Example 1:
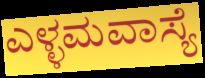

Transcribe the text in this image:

ಎಳ್ಳಮವಾಸ್ಯೆ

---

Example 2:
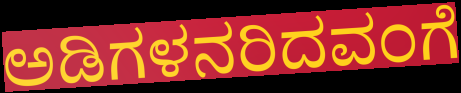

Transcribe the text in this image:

ಅಡಿಗಳನರಿದವಂಗೆ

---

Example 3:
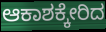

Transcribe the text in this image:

ಆಕಾಶಕ್ಕೇರಿದ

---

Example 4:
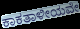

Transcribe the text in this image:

ಕಾಕತಾಳೀಯವೇ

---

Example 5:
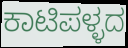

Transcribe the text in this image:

ಕಾಟಿಪಳ್ಳದ